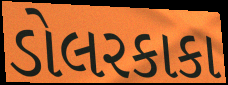
ડોલરકાકા